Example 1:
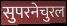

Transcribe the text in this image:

सुपरनेचुरल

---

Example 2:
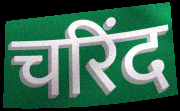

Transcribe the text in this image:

चरिंद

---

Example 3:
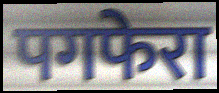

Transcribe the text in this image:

पगफेरा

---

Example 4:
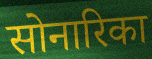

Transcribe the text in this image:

सोनारिका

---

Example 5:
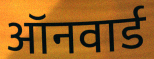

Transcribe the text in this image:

ऑनवार्ड